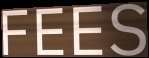
FEES